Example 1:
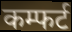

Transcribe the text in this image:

कम्फर्ट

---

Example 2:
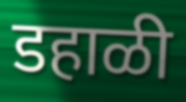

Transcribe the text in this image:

डहाळी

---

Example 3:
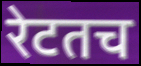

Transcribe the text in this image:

रेटतच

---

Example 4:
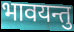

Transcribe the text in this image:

भावयन्तु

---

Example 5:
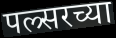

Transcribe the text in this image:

पल्सरच्या